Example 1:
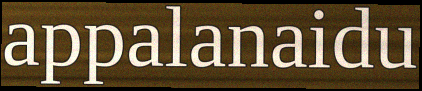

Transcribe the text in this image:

appalanaidu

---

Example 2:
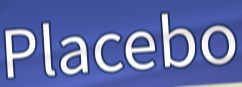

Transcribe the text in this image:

Placebo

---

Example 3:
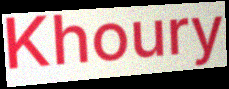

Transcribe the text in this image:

Khoury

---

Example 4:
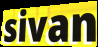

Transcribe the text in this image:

sivan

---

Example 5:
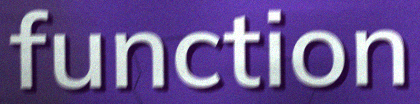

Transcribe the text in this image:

function